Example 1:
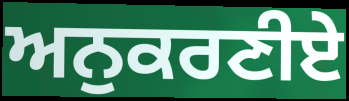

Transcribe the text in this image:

ਅਨੁਕਰਣੀਏ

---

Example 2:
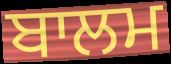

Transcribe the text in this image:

ਬਾਲਮ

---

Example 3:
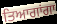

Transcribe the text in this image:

ਤਿਆਗਾਂਗਾ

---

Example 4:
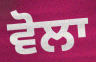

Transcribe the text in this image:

ਵੋਲਾ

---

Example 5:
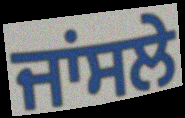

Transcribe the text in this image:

ਜਾਂਸਲੇ